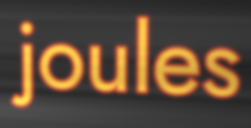
joules